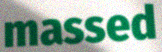
massed